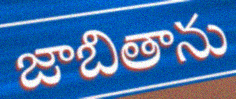
జాబితాను